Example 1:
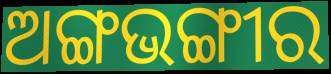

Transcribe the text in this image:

ଅଙ୍ଗଭଙ୍ଗୀର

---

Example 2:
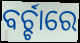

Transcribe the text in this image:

ବର୍ଚ୍ଚାରେ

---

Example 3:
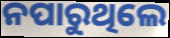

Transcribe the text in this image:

ନପାରୁଥିଲେ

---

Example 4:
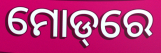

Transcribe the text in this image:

ମୋଡ୍‌ରେ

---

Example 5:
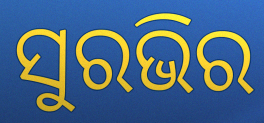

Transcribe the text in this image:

ସୁରଭିର